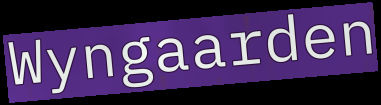
Wyngaarden